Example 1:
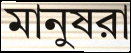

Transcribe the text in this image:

মানুষরা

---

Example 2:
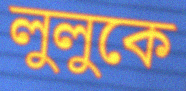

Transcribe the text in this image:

লুলুকে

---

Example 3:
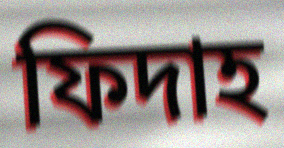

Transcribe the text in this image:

ফিদাহ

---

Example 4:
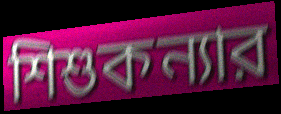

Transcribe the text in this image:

শিশুকন্যার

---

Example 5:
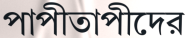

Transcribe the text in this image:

পাপীতাপীদের